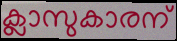
ക്ലാസുകാരന്